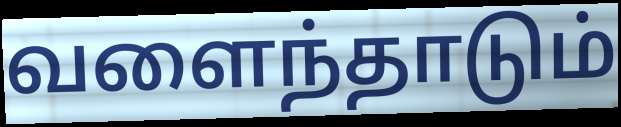
வளைந்தாடும்